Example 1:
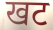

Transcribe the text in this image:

खट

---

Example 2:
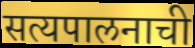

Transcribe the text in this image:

सत्यपालनाची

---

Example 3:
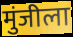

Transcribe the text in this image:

मुंजीला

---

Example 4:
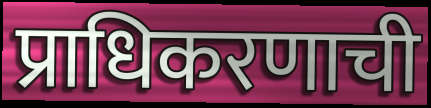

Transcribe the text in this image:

प्राधिकरणाची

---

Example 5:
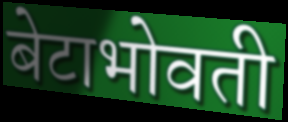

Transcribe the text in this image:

बेटाभोवती